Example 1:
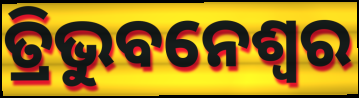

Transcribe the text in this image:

ତ୍ରିଭୁବନେଶ୍ବର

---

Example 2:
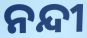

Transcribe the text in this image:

ନନ୍ଦୀ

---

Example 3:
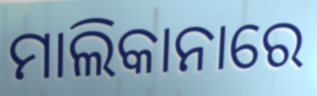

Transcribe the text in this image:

ମାଲିକାନାରେ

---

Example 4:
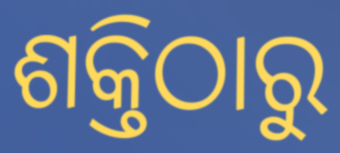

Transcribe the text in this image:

ଶକ୍ତିଠାରୁ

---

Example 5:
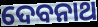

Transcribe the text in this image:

ଦେବନାଥ